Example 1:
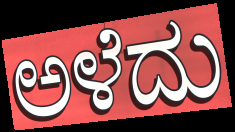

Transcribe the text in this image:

ಅಳೆದು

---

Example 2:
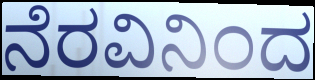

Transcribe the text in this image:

ನೆರವಿನಿಂದ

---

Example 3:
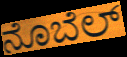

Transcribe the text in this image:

ನೊಬೆಲ್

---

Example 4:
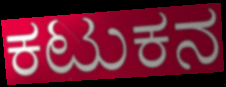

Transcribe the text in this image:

ಕಟುಕನ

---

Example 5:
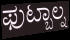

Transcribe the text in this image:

ಫುಟ್ಬಾಲ್ನ